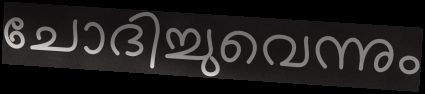
ചോദിച്ചുവെന്നും